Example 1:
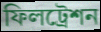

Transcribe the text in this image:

ফিলট্রেশন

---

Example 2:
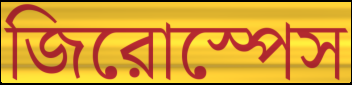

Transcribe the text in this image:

জিরোস্পেস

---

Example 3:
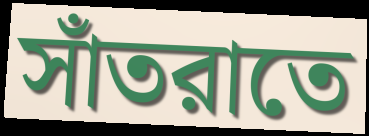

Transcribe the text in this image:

সাঁতরাতে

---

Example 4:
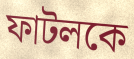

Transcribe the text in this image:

ফাটলকে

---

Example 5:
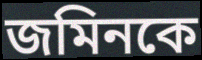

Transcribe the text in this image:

জমিনকে